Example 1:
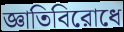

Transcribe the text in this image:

জ্ঞাতিবিরোধে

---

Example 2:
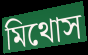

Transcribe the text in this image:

মিথোস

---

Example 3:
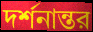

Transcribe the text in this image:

দর্শনান্তর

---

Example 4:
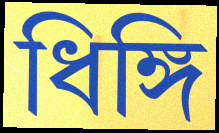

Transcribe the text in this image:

ধিঙ্গি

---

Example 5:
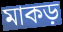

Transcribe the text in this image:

মাকড়